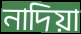
নাদিয়া